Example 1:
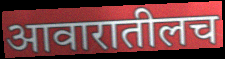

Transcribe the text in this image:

आवारातीलच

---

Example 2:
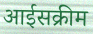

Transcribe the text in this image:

आईसक्रीम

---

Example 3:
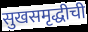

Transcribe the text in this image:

सुखसमृद्धीची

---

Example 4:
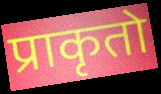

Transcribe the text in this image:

प्राकृतो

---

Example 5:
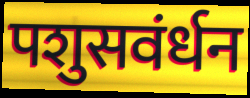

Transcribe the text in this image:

पशुसवंर्धन